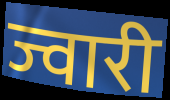
ज्वारी